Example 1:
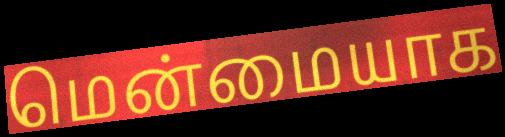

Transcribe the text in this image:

மென்மையாக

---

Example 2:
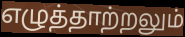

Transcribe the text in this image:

எழுத்தாற்றலும்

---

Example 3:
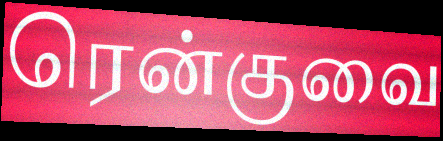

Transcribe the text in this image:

ரென்குவை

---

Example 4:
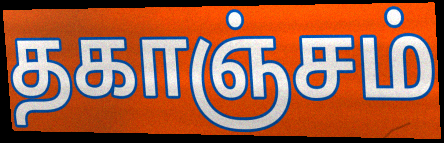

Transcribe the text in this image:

தகாஞ்சம்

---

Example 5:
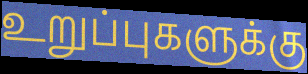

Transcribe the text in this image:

உறுப்புகளுக்கு